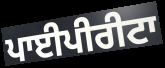
ਪਾਈਪੀਰੀਟਾ